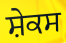
ਸ਼ੇਕਸ